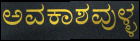
ಅವಕಾಶವುಳ್ಳ